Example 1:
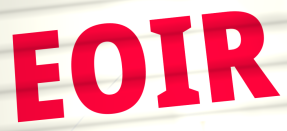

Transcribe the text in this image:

EOIR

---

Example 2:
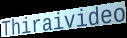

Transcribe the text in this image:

Thiraivideo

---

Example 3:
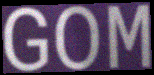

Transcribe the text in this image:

GOM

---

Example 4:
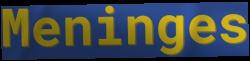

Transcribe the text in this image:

Meninges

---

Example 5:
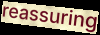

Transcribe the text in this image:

reassuring